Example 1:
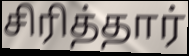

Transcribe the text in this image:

சிரித்தார்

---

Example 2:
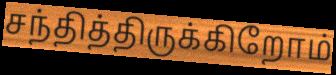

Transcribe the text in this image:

சந்தித்திருக்கிறோம்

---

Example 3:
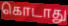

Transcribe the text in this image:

கொடாது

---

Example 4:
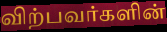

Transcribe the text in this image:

விற்பவர்களின்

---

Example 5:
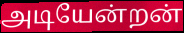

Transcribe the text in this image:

அடியேன்றன்